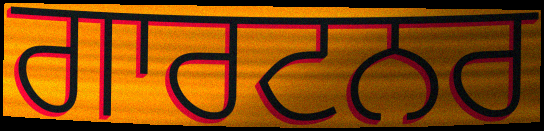
ਗਾਰਟਨਰ